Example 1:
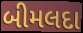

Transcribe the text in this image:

બીમલદા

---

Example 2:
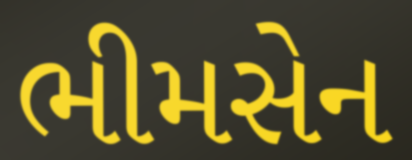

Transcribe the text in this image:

ભીમસેન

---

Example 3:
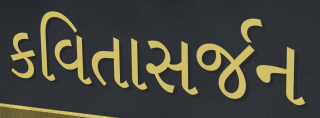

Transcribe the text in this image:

કવિતાસર્જન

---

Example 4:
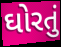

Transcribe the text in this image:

ઘોરતું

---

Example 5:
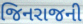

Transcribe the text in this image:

જિનરાજની